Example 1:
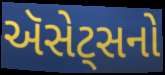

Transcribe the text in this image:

ઍસેટ્સનો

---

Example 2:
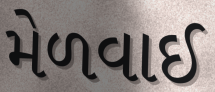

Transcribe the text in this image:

મેળવાઈ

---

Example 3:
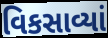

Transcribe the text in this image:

વિકસાવ્યાં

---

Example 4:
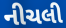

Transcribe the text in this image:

નીચલી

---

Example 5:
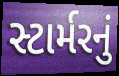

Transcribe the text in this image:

સ્ટાર્મરનું